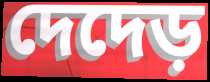
দেদেড়